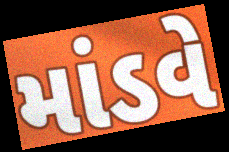
માંડવે